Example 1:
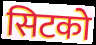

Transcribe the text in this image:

सिटको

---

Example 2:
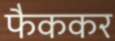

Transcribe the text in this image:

फैककर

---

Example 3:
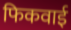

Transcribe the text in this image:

फिकवाई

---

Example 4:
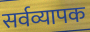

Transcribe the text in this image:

सर्वव्यापक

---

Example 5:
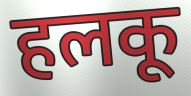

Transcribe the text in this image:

हलकू